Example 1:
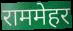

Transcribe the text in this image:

राममेहर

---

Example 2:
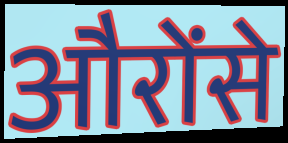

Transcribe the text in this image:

औरोंसे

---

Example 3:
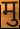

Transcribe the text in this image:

मु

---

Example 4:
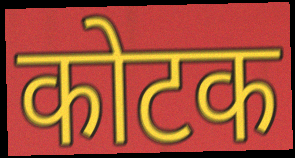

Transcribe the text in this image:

कोटक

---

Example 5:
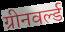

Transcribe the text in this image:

ग्रीनवर्ल्ड